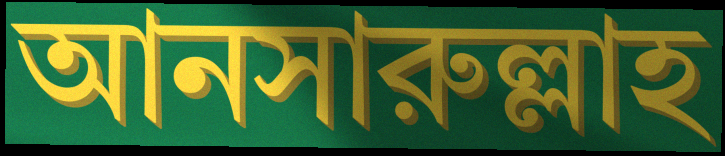
আনসারুল্লাহ